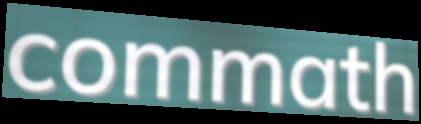
commath